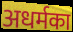
अधर्मका